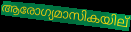
ആരോഗ്യമാസികയില്